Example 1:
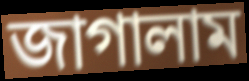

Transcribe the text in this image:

জাগালাম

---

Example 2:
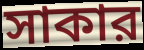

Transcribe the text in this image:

সাকার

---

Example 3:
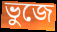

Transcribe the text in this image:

ভুজে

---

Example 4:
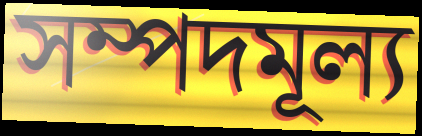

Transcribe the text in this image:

সম্পদমূল্য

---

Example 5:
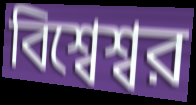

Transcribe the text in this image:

বিশ্বেশ্বর